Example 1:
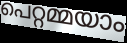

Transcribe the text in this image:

പെറ്റമ്മയാം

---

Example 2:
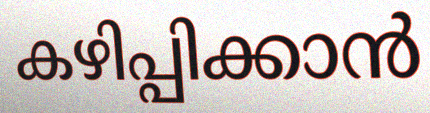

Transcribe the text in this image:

കഴിപ്പിക്കാൻ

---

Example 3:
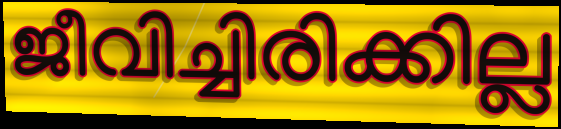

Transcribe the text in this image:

ജീവിച്ചിരിക്കില്ല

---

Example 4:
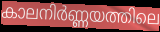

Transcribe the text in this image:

കാലനിർണ്ണയത്തിലെ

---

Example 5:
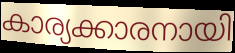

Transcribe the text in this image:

കാര്യക്കാരനായി